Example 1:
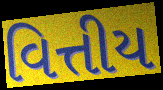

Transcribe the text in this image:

વિત્તીય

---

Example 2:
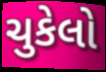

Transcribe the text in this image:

ચુકેલો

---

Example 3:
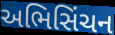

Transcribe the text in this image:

અભિસિંચન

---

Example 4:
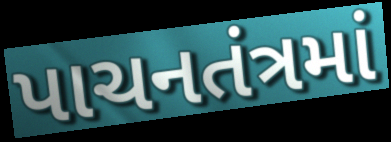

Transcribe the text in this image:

પાચનતંત્રમાં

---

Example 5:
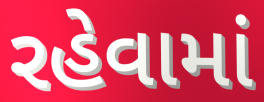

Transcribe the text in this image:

રહેવામાં